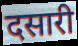
दसारी